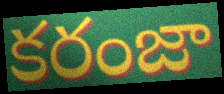
కరంజా